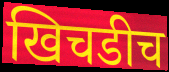
खिचडीच